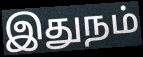
இதுநம்